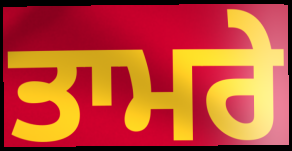
ਤਾਮਰੇ